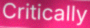
Critically